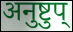
अनुष्टुप्